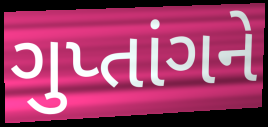
ગુપ્તાંગને